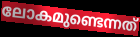
ലോകമുണ്ടെന്നത്